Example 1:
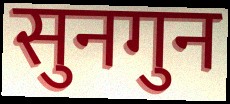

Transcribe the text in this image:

सुनगुन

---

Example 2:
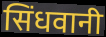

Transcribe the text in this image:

सिंधवानी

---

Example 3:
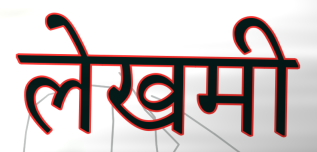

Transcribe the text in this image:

लेखमी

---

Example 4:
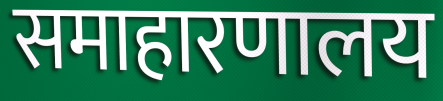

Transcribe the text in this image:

समाहारणालय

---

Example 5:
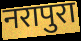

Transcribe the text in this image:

नरापुरा